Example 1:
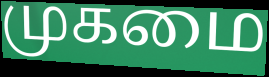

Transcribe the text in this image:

முகமை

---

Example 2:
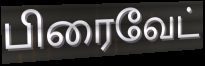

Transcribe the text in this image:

பிரைவேட்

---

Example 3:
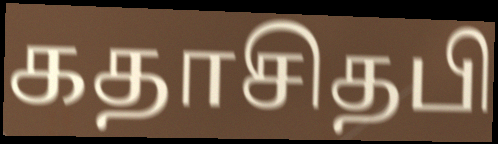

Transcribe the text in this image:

கதாசிதபி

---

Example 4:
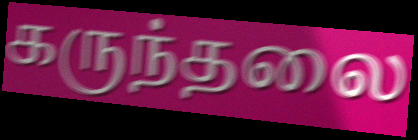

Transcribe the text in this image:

கருந்தலை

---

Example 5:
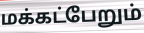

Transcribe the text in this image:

மக்கட்பேறும்